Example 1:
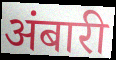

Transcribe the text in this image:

अंबारी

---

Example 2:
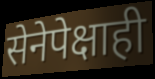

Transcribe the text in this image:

सेनेपेक्षाही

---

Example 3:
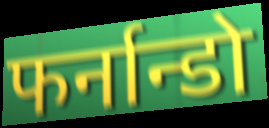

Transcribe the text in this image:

फर्नान्डो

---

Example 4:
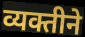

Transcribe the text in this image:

व्यक्तीने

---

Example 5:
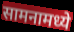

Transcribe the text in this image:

सामनामध्ये